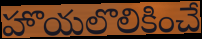
హొయలొలికించే